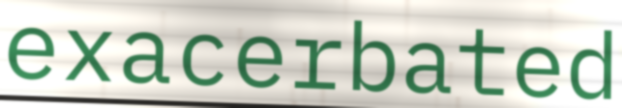
exacerbated